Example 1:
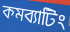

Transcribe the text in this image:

কমব্যাটিং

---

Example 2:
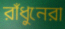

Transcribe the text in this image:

রাঁধুনেরা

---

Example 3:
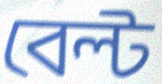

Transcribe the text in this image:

বেল্ট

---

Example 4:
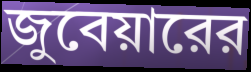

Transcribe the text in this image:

জুবেয়ারের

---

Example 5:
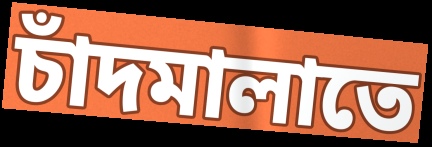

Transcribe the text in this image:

চাঁদমালাতে